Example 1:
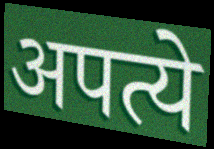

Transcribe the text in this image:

अपत्ये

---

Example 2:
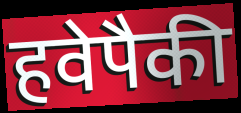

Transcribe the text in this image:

हवेपैकी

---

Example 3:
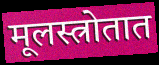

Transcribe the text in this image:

मूलस्त्रोतात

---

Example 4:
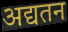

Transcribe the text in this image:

अद्यतन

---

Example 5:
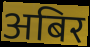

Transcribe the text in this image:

अबिर